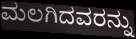
ಮಲಗಿದವರನ್ನು